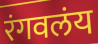
रंगवलंय